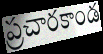
ప్రచారకాండ